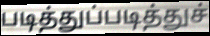
படித்துப்படித்துச்